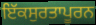
ਇੱਕਸੁਰਤਾਪੂਰਨ